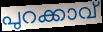
പുറക്കാവ്